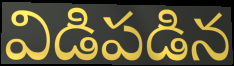
విడిపడిన